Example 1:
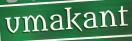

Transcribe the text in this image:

umakant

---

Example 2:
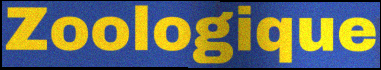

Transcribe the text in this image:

Zoologique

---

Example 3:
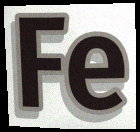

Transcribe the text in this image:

Fe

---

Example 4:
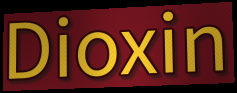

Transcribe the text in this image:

Dioxin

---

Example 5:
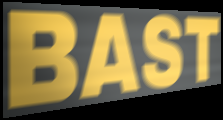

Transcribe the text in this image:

BAST